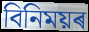
বিনিময়ৰ